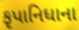
કૃપાનિધાના